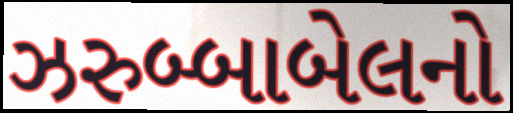
ઝરુબ્બાબેલનો